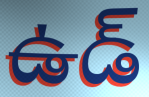
ఉడ్